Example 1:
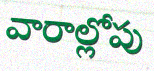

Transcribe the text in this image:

వారాల్లోపు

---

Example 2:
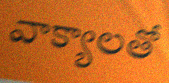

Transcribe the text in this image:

వాక్యాలతో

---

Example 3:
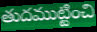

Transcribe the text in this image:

తుదముట్టించి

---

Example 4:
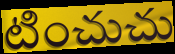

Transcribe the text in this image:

టించుచు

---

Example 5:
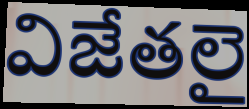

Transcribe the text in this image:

విజేతలై